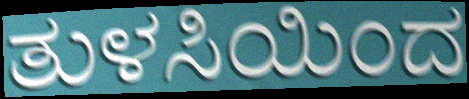
ತುಳಸಿಯಿಂದ